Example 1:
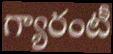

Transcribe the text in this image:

గ్యారంటీ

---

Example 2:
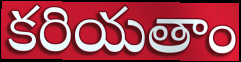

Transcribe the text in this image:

కరియతాం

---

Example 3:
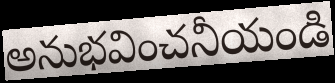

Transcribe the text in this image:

అనుభవించనీయండి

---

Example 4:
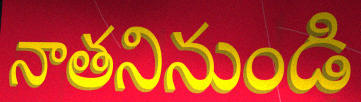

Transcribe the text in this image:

నాతనినుండి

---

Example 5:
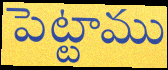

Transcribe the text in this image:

పెట్టాము